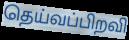
தெய்வப்பிறவி